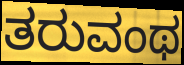
ತರುವಂಥ